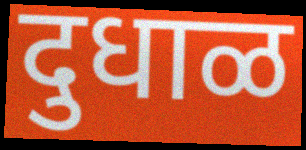
दुधाळ